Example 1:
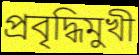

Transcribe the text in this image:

প্রবৃদ্ধিমুখী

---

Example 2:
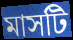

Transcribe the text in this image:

মাসটি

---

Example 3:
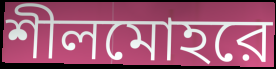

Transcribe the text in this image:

শীলমোহরে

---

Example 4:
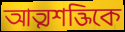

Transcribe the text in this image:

আত্মশক্তিকে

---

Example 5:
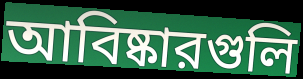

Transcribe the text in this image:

আবিষ্কারগুলি